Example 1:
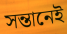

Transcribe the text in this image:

সন্তানেই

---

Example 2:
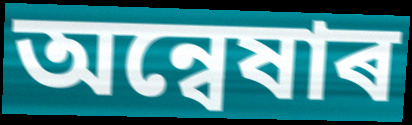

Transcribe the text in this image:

অন্বেষাৰ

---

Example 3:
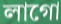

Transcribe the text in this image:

লাগো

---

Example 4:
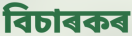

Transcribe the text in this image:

বিচাৰকৰ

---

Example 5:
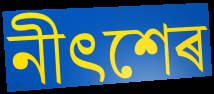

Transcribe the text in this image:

নীৎশেৰ